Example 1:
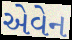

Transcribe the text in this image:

એવેન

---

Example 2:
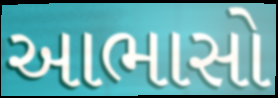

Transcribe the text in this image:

આભાસો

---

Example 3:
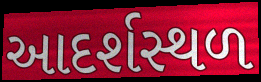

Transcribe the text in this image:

આદર્શસ્થળ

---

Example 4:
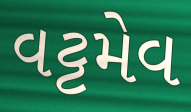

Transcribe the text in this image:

વટ્ટમેવ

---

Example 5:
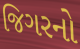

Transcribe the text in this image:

જિગરનો